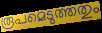
രൂപമെടുത്തതും